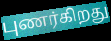
புணர்கிறது